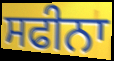
ਸਫੀਨਾ